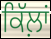
ਕਿੱਲ਼ਾਂ